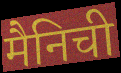
मैनिची